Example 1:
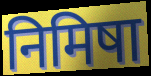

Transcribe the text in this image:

निमिषा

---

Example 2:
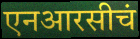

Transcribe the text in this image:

एनआरसीचं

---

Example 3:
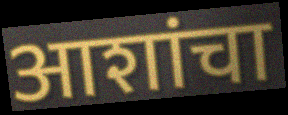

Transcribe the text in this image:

आशांचा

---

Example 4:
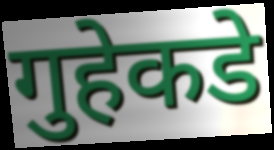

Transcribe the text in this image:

गुहेकडे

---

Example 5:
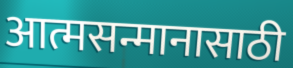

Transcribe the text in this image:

आत्मसन्मानासाठी